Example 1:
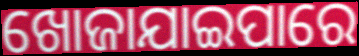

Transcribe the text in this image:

ଖୋଜାଯାଇପାରେ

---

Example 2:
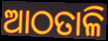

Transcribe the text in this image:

ଆଠତାଳି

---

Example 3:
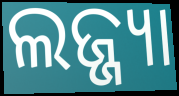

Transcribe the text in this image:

ଲଜ୍ଜ୍ୟା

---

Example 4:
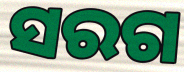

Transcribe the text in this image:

ସରଗ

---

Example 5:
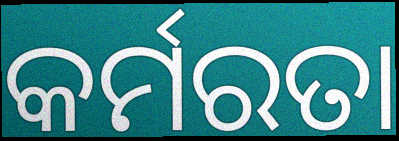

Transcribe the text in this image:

କର୍ମରତା